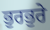
ਭੁਰਭੁਰੇ